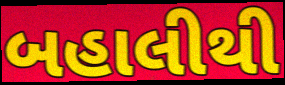
બહાલીથી